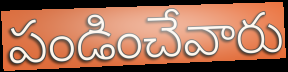
పండించేవారు